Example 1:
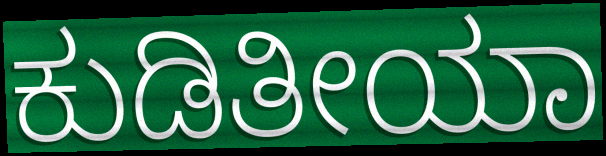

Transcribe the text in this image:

ಕುಡಿತೀಯಾ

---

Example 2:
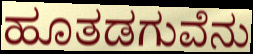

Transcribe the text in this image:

ಹೂತಡಗುವೆನು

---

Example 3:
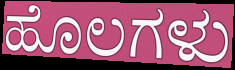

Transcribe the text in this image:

ಹೊಲಗಳು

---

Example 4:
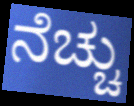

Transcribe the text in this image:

ನೆಚ್ಚು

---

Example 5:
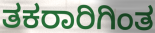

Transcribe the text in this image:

ತಕರಾರಿಗಿಂತ